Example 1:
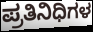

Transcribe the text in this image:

ಪ್ರತಿನಿಧಿಗಳ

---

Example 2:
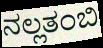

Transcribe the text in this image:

ನಲ್ಲತಂಬಿ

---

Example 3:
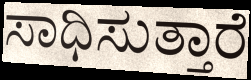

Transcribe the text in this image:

ಸಾಧಿಸುತ್ತಾರೆ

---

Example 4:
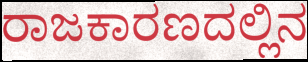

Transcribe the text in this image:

ರಾಜಕಾರಣದಲ್ಲಿನ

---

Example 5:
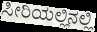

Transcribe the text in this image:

ಸೀರಿಯಲ್ಲಿನಲ್ಲಿ